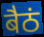
बैठं